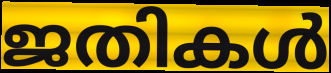
ജതികൾ